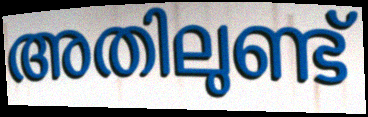
അതിലുണ്ട്